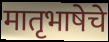
मातृभाषेचे